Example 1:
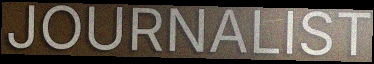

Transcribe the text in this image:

JOURNALIST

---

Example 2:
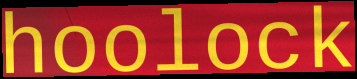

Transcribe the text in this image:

hoolock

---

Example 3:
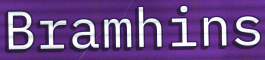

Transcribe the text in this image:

Bramhins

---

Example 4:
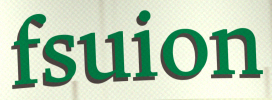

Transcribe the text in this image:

fsuion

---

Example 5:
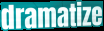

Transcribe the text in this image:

dramatize